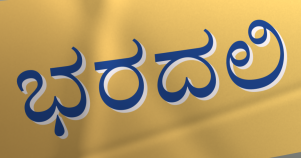
ಭರದಲಿ